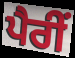
ਪੈਰੀਂ